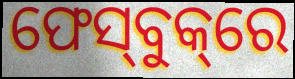
ଫେସ୍‌ବୁକ୍‌ରେ